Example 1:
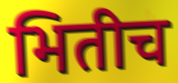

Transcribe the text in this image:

भितीच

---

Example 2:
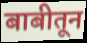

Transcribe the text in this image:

बाबीतून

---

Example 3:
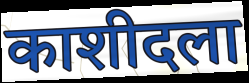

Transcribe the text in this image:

काशीदला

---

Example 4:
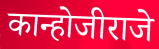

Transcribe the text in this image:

कान्होजीराजे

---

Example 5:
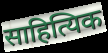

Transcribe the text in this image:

साहित्यिक